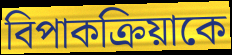
বিপাকক্রিয়াকে